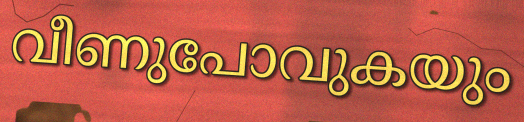
വീണുപോവുകയും